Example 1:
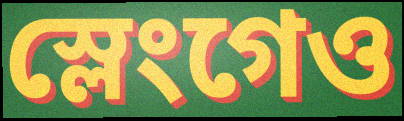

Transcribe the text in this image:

স্লেংগেও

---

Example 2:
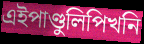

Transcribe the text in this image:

এইপাণ্ডুলিপিখনি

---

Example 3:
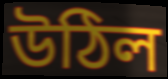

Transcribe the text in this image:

উঠিল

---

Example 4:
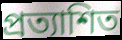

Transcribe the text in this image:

প্ৰত্যাশিত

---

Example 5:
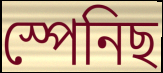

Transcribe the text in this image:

স্পেনিছ